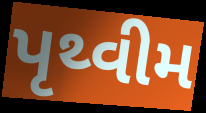
પૃથ્વીમ